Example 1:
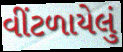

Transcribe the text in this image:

વીંટળાયેલું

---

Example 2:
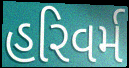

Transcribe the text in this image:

હરિવર્મ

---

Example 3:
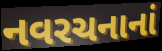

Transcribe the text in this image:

નવરચનાનાં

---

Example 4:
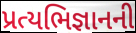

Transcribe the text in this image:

પ્રત્યભિજ્ઞાનની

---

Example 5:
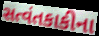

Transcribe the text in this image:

સત્વંતકાકીના